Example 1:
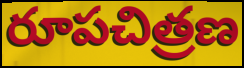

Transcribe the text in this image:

రూపచిత్రణ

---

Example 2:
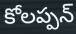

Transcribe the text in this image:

కోలప్పన్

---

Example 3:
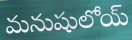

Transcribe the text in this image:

మనుషులోయ్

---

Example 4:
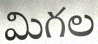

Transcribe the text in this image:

మిగల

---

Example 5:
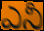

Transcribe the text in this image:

ఎనీ